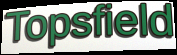
Topsfield